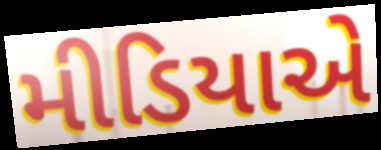
મીડિયાએ